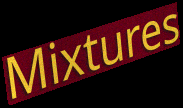
Mixtures